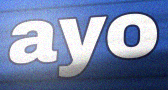
ayo